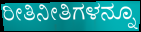
ರೀತಿನೀತಿಗಳನ್ನೂ